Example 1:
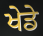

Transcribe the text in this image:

ਖੇਡੇ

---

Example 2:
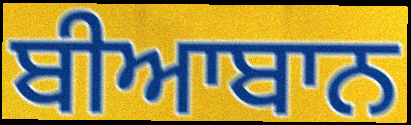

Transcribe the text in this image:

ਬੀਆਬਾਨ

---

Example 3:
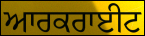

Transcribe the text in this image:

ਆਰਕਰਾਈਟ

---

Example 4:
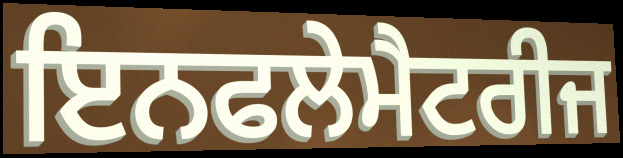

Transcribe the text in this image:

ਇਨਫਲੇਮੈਟਰੀਜ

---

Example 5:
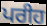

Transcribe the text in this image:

ਪਰੀਹ